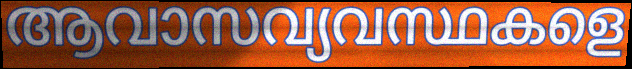
ആവാസവ്യവസ്ഥകളെ